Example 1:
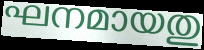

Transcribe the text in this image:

ഘനമായതു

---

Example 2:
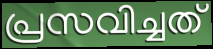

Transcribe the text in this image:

പ്രസവിച്ചത്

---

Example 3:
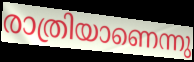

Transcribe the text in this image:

രാത്രിയാണെന്നു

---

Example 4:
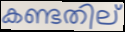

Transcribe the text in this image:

കണ്ടതില്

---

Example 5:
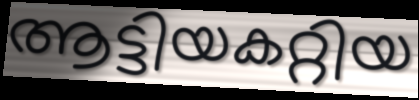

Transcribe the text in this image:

ആട്ടിയകറ്റിയ